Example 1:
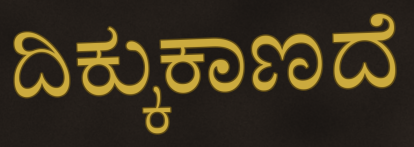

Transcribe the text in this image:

ದಿಕ್ಕುಕಾಣದೆ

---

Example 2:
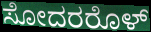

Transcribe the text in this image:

ಸೋದರರೊಳ್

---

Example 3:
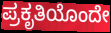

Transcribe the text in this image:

ಪ್ರಕೃತಿಯೊಂದೇ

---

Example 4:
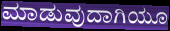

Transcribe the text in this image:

ಮಾಡುವುದಾಗಿಯೂ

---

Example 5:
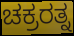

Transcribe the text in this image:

ಚಕ್ರರತ್ನ